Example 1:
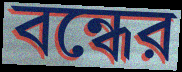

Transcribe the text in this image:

বন্ধের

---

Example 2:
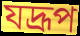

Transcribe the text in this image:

যদ্রূপ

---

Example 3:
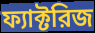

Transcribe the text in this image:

ফ্যাক্টরিজ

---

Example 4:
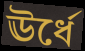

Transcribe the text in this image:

ঊর্ধে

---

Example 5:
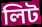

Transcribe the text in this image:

লিট